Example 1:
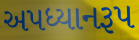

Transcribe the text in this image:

અપધ્યાનરૂપ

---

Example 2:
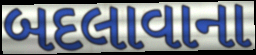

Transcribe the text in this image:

બદલાવાના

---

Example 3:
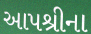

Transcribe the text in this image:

આપશ્રીના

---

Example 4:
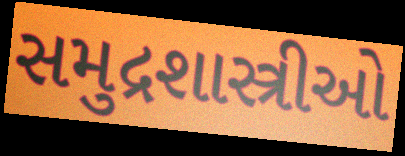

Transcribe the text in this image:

સમુદ્રશાસ્ત્રીઓ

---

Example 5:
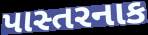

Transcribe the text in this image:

પાસ્તરનાક